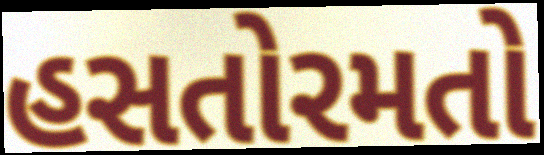
હસતોરમતો